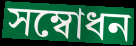
সম্বোধন